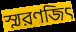
স্মরণজিৎ